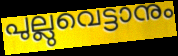
പുല്ലുവെട്ടാനും